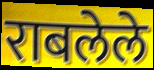
राबलेले